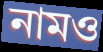
নামও